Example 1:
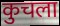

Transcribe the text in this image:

कुचला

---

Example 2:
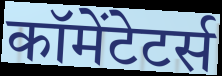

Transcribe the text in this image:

कॉमेंटेटर्स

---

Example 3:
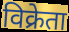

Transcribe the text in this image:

विक्रेता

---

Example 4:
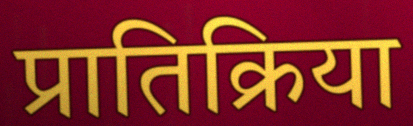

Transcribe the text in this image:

प्रातिक्रिया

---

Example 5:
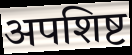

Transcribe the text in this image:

अपशिष्ट